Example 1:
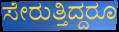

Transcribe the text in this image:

ಸೇರುತ್ತಿದ್ದರೂ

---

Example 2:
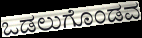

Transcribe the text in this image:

ಒಡಲುಗೊಂಡವ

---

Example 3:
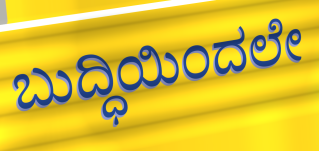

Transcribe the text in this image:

ಬುದ್ಧಿಯಿಂದಲೇ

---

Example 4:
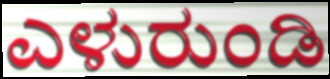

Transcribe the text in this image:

ಎಳುರುಂಡಿ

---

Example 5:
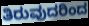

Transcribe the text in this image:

ತಿರುವುದರಿಂದ